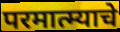
परमात्म्याचे